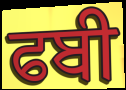
ਫਬੀ